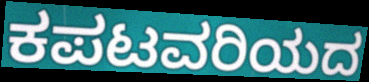
ಕಪಟವರಿಯದ